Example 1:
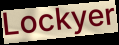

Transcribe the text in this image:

Lockyer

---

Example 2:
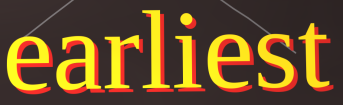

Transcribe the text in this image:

earliest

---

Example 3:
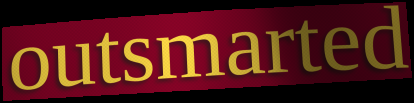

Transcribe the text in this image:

outsmarted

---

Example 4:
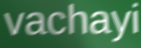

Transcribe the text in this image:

vachayi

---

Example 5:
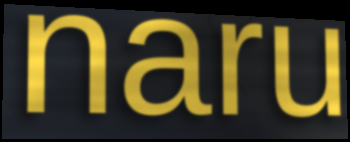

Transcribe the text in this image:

naru